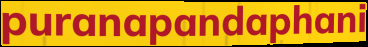
puranapandaphani